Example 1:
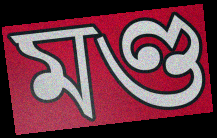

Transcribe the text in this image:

মণ্ড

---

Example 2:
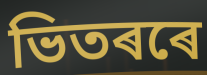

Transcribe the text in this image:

ভিতৰৰে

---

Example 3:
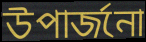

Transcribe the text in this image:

উপাৰ্জনো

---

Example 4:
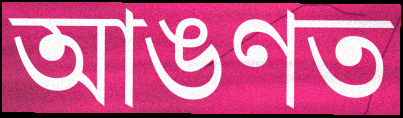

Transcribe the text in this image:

আঙণত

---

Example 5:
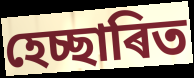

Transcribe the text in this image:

হেচ্ছাৰিত